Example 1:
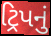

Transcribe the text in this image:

ટ્રિપનું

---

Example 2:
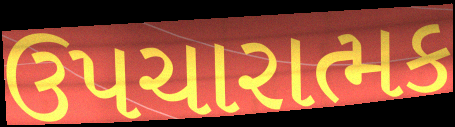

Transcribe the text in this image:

ઉપચારાત્મક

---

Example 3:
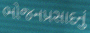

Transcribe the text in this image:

ભોજનપ્રસાદનું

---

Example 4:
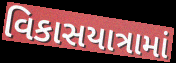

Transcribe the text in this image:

વિકાસયાત્રામાં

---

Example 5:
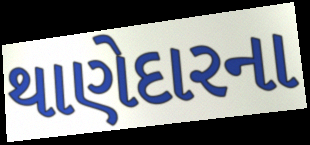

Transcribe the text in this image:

થાણેદારના